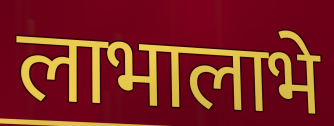
लाभालाभे